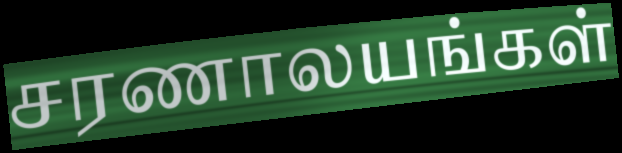
சரணாலயங்கள்